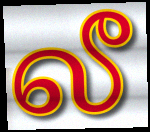
லீ